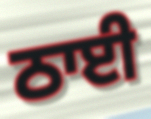
ਠਾਈ